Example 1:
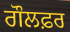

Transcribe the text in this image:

ਗੌਲਫ਼ਰ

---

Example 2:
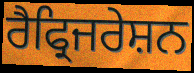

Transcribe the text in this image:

ਰੈਫ੍ਰਿਜਰੇਸ਼ਨ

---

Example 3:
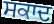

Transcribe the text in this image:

ਸਕਾਦ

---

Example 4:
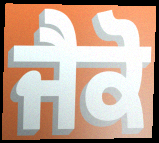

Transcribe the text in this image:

ਜੈਕੋ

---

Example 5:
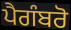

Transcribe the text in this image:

ਪੈਗੰਬਰੋ